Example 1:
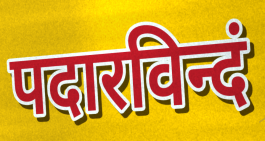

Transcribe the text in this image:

पदारविन्दं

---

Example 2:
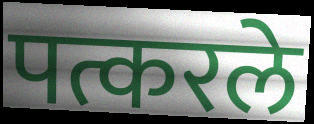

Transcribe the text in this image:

पत्करले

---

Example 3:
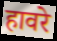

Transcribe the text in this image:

हावरे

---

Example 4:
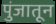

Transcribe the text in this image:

पुंजातून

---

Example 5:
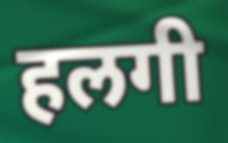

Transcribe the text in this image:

हलगी